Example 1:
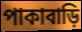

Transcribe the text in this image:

পাকাবাড়ি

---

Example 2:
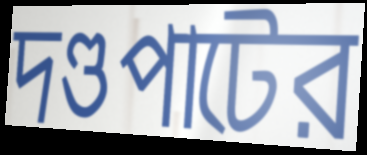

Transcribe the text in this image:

দণ্ডপাটের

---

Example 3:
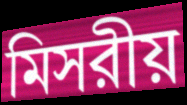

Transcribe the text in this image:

মিসরীয়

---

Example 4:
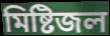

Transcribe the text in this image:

মিষ্টিজল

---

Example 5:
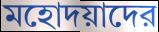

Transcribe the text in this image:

মহোদয়াদের